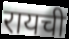
रायची